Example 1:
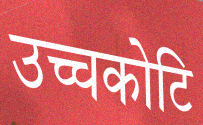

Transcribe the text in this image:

उच्चकोटि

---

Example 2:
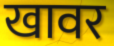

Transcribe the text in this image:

खावर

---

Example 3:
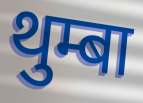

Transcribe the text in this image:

थुम्बा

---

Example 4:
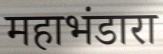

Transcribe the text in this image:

महाभंडारा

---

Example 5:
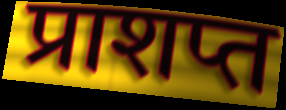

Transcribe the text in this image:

प्राशप्त